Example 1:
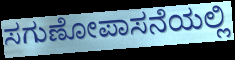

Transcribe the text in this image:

ಸಗುಣೋಪಾಸನೆಯಲ್ಲಿ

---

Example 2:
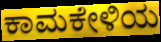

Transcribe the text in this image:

ಕಾಮಕೇಳಿಯ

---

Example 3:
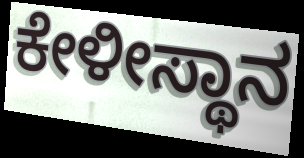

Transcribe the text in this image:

ಕೇಳೀಸ್ಥಾನ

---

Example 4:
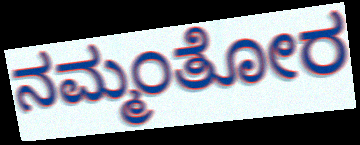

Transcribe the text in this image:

ನಮ್ಮಂತೋರ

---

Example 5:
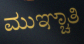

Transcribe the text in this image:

ಮುಞ್ಚಾತಿ